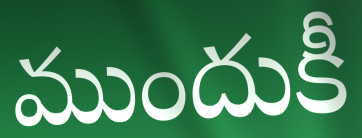
ముందుకీ